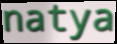
natya